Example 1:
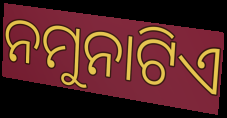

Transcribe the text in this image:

ନମୁନାଟିଏ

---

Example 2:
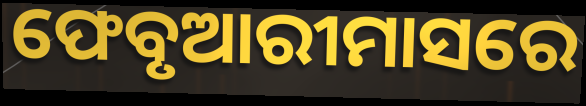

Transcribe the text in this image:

ଫେବୃଆରୀମାସରେ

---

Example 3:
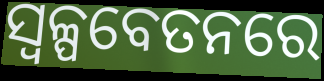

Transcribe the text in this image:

ସ୍ୱଳ୍ପବେତନରେ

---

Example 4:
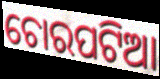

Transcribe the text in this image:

ଚୋରପଟିଆ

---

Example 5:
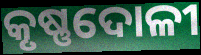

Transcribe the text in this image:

କୃଷ୍ଣଦୋଳୀ